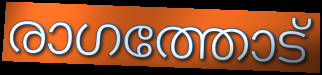
രാഗത്തോട്